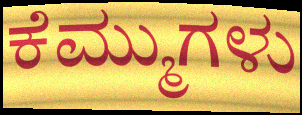
ಕೆಮ್ಮುಗಳು